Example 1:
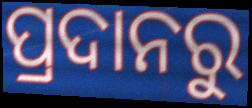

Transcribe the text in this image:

ପ୍ରଦାନରୁ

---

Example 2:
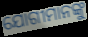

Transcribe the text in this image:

ଯୋଗୀମାନଙ୍କୁ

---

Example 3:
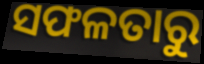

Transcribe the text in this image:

ସଫଳତାରୁ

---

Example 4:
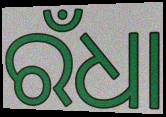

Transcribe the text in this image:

ରଁଧା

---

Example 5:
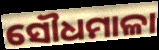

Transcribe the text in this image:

ସୌଧମାଳା